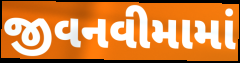
જીવનવીમામાં